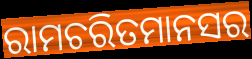
ରାମଚରିତମାନସର